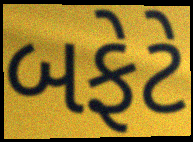
બફેટે